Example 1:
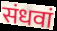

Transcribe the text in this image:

संधवां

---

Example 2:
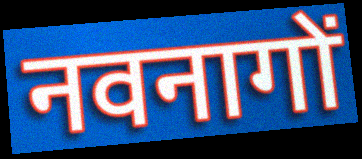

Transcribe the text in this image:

नवनागों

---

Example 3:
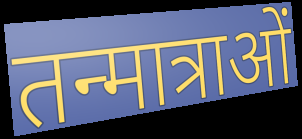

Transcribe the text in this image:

तन्मात्राओं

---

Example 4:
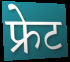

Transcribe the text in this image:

फ्रेट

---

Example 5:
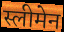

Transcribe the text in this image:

स्लीमेन